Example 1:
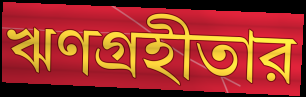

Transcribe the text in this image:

ঋণগ্রহীতার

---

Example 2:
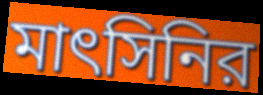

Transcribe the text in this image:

মাৎসিনির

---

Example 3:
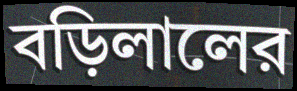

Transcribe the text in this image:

বড়িলালের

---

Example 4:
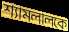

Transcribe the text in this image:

শ্যামলালকে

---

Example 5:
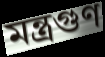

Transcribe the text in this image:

মন্ত্রগুণ